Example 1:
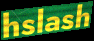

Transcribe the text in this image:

hslash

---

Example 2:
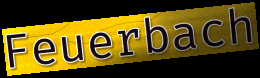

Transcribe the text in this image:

Feuerbach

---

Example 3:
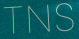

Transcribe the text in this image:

TNS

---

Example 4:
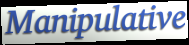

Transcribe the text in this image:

Manipulative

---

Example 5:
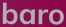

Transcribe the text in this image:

baro